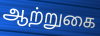
ஆற்றுகை